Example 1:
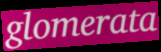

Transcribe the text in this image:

glomerata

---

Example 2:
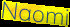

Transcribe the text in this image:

Naomi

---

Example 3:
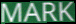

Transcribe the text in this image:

MARK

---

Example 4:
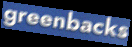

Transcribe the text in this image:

greenbacks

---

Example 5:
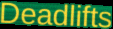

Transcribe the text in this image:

Deadlifts